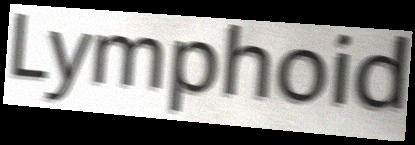
Lymphoid